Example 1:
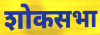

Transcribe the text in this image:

शोकसभा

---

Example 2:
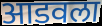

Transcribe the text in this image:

आडवला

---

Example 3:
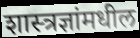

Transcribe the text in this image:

शास्त्रज्ञांमधील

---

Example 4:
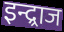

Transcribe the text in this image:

इन्द्र्राज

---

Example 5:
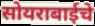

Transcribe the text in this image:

सोयराबाईचे